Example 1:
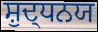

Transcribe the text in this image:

ਸ਼ੁਦ੍ਧਨਯ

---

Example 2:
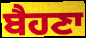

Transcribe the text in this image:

ਬੈਹਣਾ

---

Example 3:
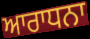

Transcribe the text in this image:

ਆਰਾਧਨਾ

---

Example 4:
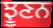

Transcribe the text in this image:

ਝੂਣਨ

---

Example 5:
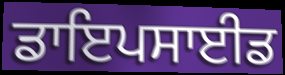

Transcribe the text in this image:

ਡਾਇਪਸਾਈਡ